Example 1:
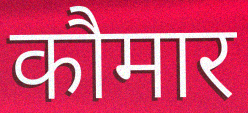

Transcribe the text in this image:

कौमार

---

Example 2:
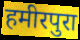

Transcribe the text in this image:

हमीरपुरा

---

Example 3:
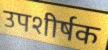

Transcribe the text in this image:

उपशीर्षक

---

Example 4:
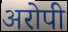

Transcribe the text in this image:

अरोपी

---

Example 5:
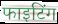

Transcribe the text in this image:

फाइटिंग